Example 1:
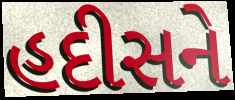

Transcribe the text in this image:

હદીસને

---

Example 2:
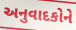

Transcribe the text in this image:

અનુવાદકોને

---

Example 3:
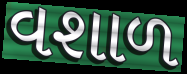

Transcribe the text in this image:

વશાળ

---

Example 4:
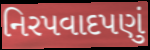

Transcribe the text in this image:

નિરપવાદપણું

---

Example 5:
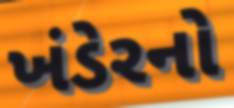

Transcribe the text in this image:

ખંડેરનો